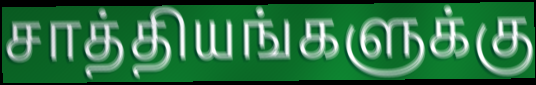
சாத்தியங்களுக்கு